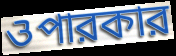
ওপারকার